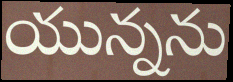
యున్నను